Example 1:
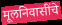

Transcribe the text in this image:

मूलनिवासींचे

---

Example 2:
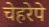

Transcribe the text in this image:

चेहरेपे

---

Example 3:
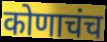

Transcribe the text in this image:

कोणाचंच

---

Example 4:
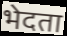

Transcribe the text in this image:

भेदता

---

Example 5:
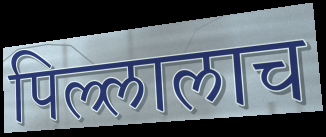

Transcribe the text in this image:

पिल्लालाच